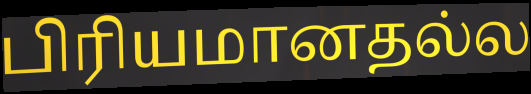
பிரியமானதல்ல